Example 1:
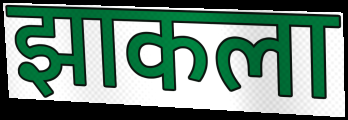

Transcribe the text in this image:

झाकला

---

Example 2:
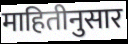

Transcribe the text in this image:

माहितीनुसार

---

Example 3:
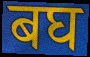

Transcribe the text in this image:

बघ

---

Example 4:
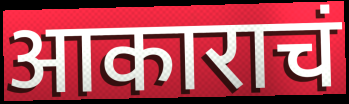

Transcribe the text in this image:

आकाराचं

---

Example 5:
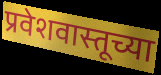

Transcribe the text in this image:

प्रवेशवास्तूच्या